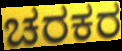
ಚರಕರ